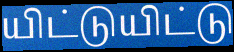
யிட்டுயிட்டு